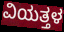
ವಿಯತ್ತಳ